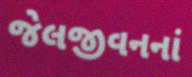
જેલજીવનનાં